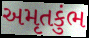
અમૃતકુંભ